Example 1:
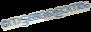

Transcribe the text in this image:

നേട്ടങ്ങളൊന്നും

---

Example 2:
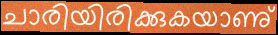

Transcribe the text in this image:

ചാരിയിരിക്കുകയാണു്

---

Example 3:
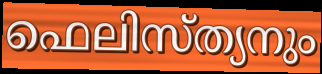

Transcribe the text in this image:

ഫെലിസ്ത്യനും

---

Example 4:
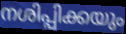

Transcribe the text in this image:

നശിപ്പിക്കയും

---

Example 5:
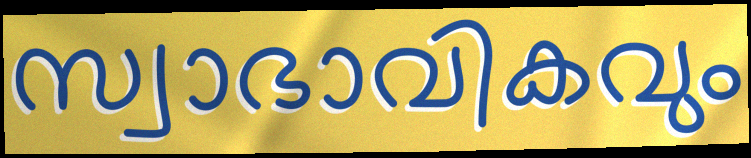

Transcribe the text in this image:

സ്വാഭാവികവും